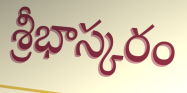
శ్రీభాస్కరం